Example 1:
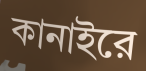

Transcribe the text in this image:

কানাইরে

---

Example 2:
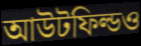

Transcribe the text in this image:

আউটফিল্ডও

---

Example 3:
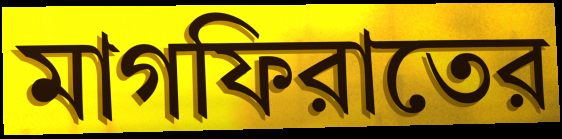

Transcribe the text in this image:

মাগফিরাতের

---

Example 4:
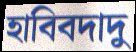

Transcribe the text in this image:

হাবিবদাদু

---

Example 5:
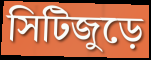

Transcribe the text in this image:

সিটিজুড়ে